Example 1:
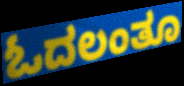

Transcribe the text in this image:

ಓದಲಂತೂ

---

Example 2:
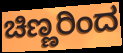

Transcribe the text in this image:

ಚಿಣ್ಣರಿಂದ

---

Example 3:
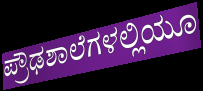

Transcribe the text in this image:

ಪ್ರೌಢಶಾಲೆಗಳಲ್ಲಿಯೂ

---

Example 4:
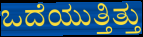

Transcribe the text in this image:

ಒದೆಯುತ್ತಿತ್ತು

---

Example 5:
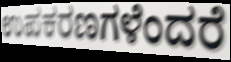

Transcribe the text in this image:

ಉಪಕರಣಗಳೆಂದರೆ